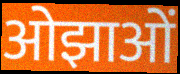
ओझाओं